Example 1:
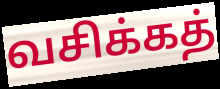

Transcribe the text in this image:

வசிக்கத்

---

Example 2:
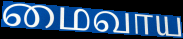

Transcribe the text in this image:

மைவாய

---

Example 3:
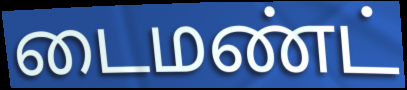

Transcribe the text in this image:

டைமண்ட்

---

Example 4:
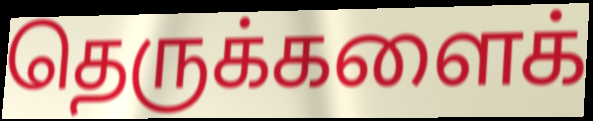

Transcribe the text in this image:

தெருக்களைக்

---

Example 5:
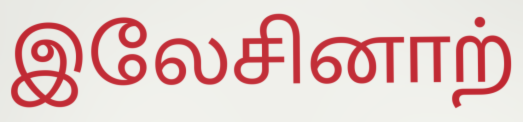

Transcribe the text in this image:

இலேசினாற்